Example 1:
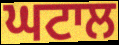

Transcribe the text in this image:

ਘਟਾਲ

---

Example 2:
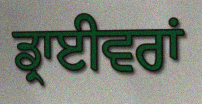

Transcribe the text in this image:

ਡ੍ਰਾਈਵਰਾਂ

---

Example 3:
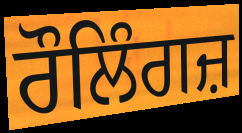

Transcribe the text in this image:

ਰੌਲਿੰਗਜ਼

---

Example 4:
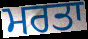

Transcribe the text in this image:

ਮਰਤਾ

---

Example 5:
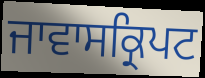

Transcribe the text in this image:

ਜਾਵਾਸਕ੍ਰਿਪਟ